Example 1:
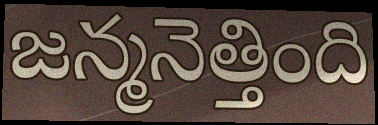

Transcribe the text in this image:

జన్మనెత్తింది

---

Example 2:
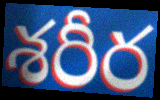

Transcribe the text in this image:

శరీర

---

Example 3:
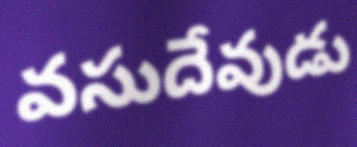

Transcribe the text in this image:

వసుదేవుడు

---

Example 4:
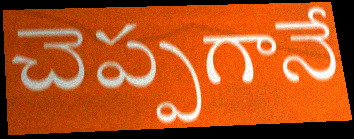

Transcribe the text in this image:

చెప్పగానే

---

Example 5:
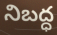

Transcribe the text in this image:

నిబద్ధ